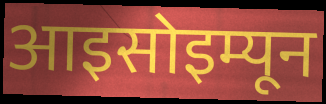
आइसोइम्यून